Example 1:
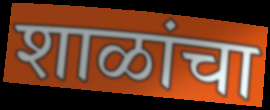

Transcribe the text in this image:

शाळांचा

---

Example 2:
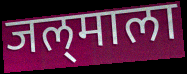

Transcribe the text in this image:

जल्माला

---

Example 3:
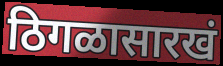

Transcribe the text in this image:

ठिगळासारखं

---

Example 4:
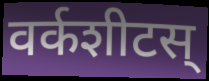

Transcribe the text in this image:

वर्कशीटस्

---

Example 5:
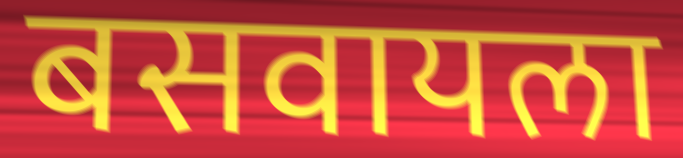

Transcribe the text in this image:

बसवायला